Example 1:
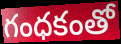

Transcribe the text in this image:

గంధకంతో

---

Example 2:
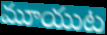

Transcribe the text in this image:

మూయుట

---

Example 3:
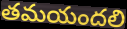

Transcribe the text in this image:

తమయందలి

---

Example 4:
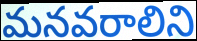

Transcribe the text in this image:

మనవరాలిని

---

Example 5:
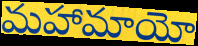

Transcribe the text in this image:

మహామాయో